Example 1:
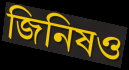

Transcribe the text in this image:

জিনিষও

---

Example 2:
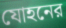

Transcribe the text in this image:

যোহনের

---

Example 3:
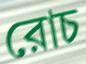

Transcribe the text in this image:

রোচ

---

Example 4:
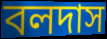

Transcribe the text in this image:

বলদাস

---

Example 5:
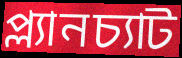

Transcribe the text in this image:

প্ল্যানচ্যাট